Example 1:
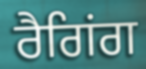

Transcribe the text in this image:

ਰੈਗਿਂਗ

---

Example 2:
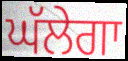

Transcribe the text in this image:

ਘੱਲੇਗਾ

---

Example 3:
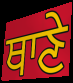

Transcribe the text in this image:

ਥਾਣੇ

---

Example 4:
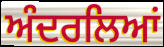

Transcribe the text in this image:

ਅੰਦਰਲਿਆਂ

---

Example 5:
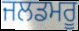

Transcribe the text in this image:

ਜਲਡਮਰੂ